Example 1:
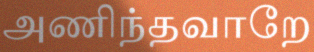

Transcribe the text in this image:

அணிந்தவாறே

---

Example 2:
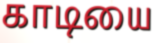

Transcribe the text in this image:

காடியை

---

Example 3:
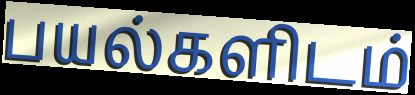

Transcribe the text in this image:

பயல்களிடம்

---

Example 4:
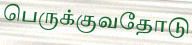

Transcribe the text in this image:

பெருக்குவதோடு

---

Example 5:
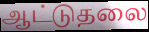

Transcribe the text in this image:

ஆட்டுதலை